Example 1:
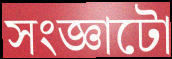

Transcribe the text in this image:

সংজ্ঞাটো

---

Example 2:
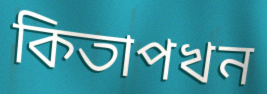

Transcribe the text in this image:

কিতাপখন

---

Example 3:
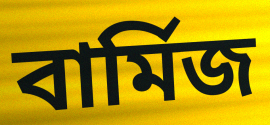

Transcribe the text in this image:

বাৰ্মিজ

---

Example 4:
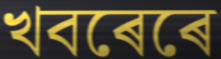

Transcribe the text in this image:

খবৰেৰে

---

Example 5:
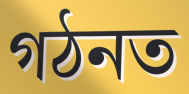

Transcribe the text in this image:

গঠনত